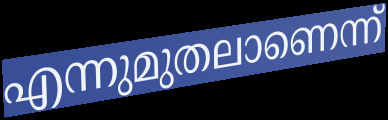
എന്നുമുതലാണെന്ന്